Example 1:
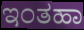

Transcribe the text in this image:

ಇಂತಹಾ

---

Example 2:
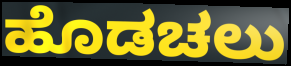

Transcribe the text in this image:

ಹೊಡಚಲು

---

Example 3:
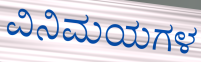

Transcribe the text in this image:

ವಿನಿಮಯಗಳ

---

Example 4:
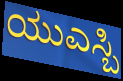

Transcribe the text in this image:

ಯುಎಸ್ಬಿ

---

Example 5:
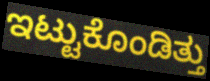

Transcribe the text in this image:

ಇಟ್ಟುಕೊಂಡಿತ್ತು